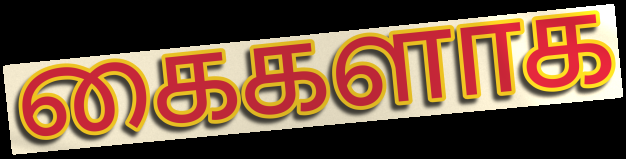
கைகளாக